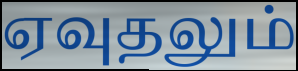
ஏவுதலும்